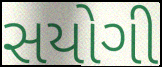
સયોગી